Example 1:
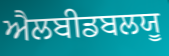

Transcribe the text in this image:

ਐਲਬੀਡਬਲਯੂ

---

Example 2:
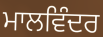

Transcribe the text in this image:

ਮਾਲਵਿੰਦਰ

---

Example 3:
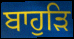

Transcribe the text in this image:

ਬਾਹੁੜਿ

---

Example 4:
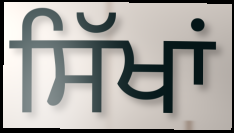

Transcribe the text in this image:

ਸਿੱਖਾਂ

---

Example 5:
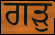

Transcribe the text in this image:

ਗੜੁ